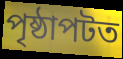
পৃষ্ঠাপটত